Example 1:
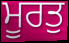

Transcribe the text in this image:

ਮੂਰਤੁ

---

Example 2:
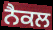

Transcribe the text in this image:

ਨੈਕਲ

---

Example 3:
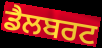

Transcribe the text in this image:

ਡੈਲਬਰਟ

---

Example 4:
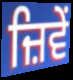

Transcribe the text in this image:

ਜ਼ਿਵੇਂ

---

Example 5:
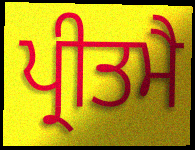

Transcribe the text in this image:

ਪ੍ਰੀਤਮੈ